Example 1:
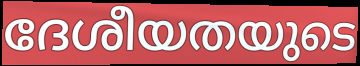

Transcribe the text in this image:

ദേശീയതയുടെ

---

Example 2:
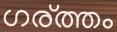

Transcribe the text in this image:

ഗര്ത്തം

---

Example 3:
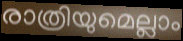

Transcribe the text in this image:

രാത്രിയുമെല്ലാം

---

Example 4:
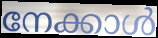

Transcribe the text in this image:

നേക്കാൾ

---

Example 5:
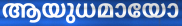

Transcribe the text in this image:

ആയുധമായോ